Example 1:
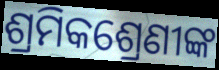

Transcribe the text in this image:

ଶ୍ରମିକଶ୍ରେଣୀଙ୍କ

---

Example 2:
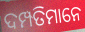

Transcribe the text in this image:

ଦମ୍ପତିମାନେ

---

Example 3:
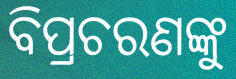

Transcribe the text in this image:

ବିପ୍ରଚରଣଙ୍କୁ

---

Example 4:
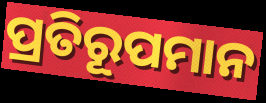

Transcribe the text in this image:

ପ୍ରତିରୂପମାନ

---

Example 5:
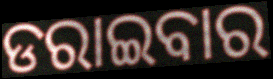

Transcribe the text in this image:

ଡରାଇବାର